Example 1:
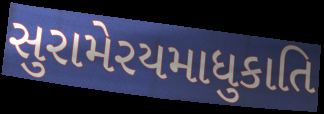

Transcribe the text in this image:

સુરામેરયમાધુકાતિ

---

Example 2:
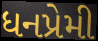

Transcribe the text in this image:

ધનપ્રેમી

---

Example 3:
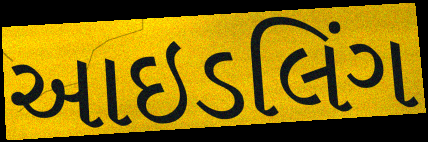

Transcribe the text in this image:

આઇડલિંગ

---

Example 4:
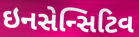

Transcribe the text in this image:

ઇનસેન્સિટિવ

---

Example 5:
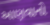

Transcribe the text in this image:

આણવાનો